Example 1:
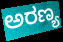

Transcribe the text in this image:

ಅರಣ್ಯ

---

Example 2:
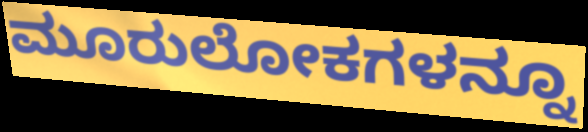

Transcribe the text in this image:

ಮೂರುಲೋಕಗಳನ್ನೂ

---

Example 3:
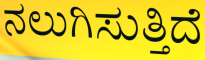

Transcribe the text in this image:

ನಲುಗಿಸುತ್ತಿದೆ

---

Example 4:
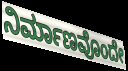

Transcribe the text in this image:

ನಿರ್ಮಾಣವೊಂದೇ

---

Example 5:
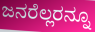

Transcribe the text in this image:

ಜನರೆಲ್ಲರನ್ನೂ